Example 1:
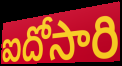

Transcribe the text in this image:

ఐదోసారి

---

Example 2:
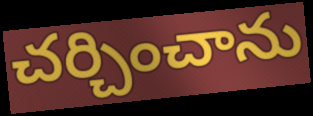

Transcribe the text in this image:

చర్చించాను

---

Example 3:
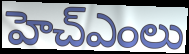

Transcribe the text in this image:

హెచ్ఎంలు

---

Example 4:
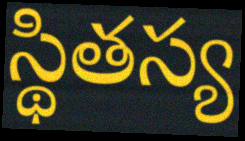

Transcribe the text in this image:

స్థితస్య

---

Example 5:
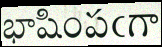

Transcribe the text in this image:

భాషింపఁగా